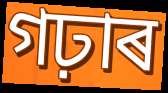
গঢ়াৰ